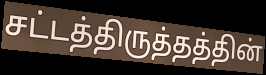
சட்டத்திருத்தத்தின்